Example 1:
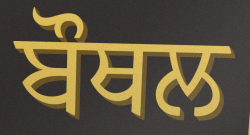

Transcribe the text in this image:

ਬੌਥਲ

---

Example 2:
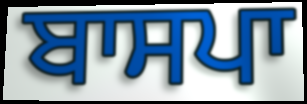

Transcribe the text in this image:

ਬਾਸਪਾ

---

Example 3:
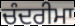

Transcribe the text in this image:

ਚੰਦਰੀਮਾ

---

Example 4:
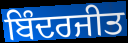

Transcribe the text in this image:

ਬਿੰਦਰਜੀਤ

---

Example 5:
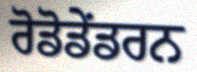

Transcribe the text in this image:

ਰੋਡੋਡੇਂਡਰਨ